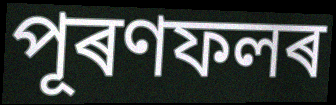
পূৰণফলৰ